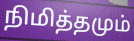
நிமித்தமும்